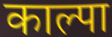
काल्पा